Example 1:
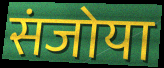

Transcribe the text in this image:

संजोया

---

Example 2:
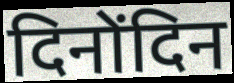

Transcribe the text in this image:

दिनोंदिन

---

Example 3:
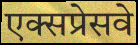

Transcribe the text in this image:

एक्सप्रेसवे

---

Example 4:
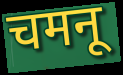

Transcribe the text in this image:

चमनू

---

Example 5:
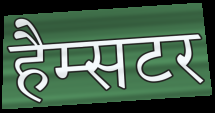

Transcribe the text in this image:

हैम्सटर